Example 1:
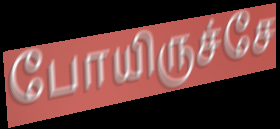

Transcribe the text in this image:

போயிருச்சே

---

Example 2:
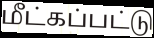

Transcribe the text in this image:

மீட்கப்பட்டு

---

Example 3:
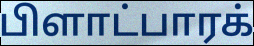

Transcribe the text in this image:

பிளாட்பாரக்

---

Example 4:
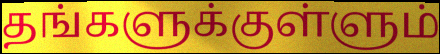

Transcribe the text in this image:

தங்களுக்குள்ளும்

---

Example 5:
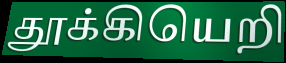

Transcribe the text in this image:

தூக்கியெறி